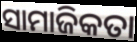
ସାମାଜିକତା